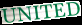
UNITED